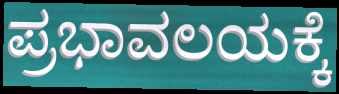
ಪ್ರಭಾವಲಯಕ್ಕೆ